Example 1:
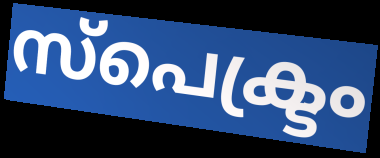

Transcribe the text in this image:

സ്പെക്ട്രം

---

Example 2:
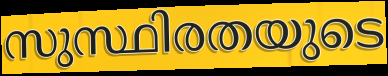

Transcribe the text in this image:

സുസ്ഥിരതയുടെ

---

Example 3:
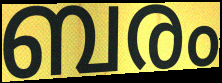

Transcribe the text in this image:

ബരം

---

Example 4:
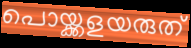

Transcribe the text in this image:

പൊയ്ക്കളയരുത്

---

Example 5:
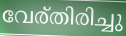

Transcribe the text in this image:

വേര്തിരിച്ചു